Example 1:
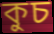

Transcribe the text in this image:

কুচ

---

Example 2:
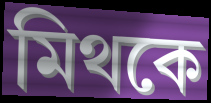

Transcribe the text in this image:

মিথকে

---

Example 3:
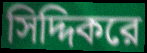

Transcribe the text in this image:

সিদ্দিকরে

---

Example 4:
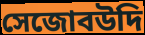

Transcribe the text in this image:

সেজোবউদি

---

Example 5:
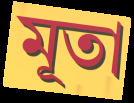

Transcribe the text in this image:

মূতা